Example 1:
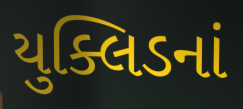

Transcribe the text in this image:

યુક્લિડનાં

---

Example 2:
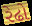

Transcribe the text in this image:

રેઢો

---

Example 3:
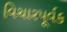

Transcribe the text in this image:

વિચારપૂર્વક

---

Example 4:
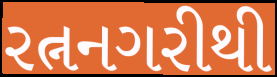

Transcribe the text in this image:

રત્નનગરીથી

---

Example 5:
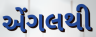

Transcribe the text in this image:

એંગલથી